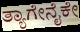
ತ್ಯಾಗೇನೈಕೇ